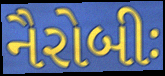
નૈરોબીઃ